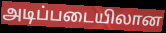
அடிப்படையிலான